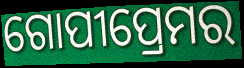
ଗୋପୀପ୍ରେମର